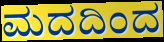
ಮದದಿಂದ